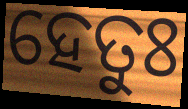
ହେତୁଃ